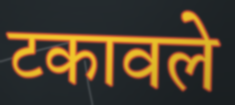
टकावले